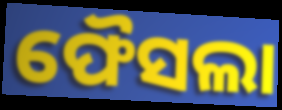
ଫୈସଲା